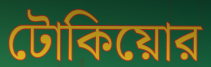
টোকিয়োর